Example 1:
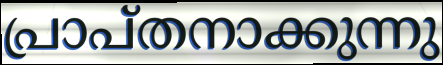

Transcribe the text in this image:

പ്രാപ്തനാക്കുന്നു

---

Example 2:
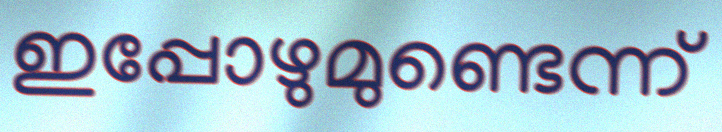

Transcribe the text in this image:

ഇപ്പോഴുമുണ്ടെന്ന്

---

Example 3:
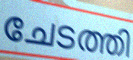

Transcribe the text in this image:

ചേടത്തി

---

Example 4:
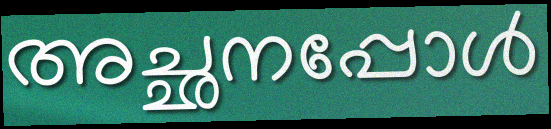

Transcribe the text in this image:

അച്ഛനപ്പോൾ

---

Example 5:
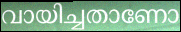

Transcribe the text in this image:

വായിച്ചതാണോ